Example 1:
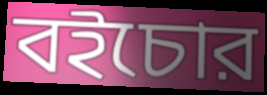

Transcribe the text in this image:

বইচোর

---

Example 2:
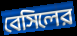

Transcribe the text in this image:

বেসিলের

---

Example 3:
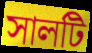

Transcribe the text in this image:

সালটি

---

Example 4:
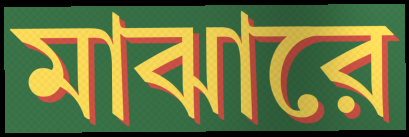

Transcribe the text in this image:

মাঝারে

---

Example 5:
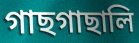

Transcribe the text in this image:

গাছগাছালি